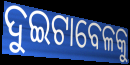
ଦୁଇଟାବେଳକୁ